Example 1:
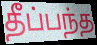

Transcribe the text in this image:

தீப்பந்த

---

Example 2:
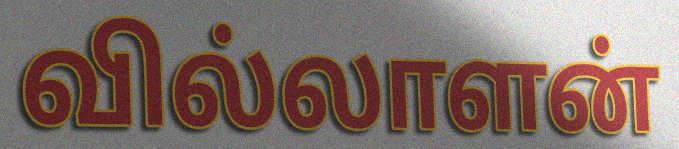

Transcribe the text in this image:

வில்லாளன்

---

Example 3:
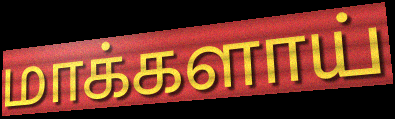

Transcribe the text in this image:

மாக்களாய்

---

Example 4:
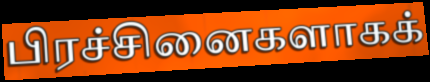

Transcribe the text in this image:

பிரச்சினைகளாகக்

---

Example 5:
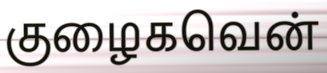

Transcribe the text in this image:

குழைகவென்